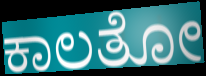
ಕಾಲತೋ